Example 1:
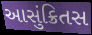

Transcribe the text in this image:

આસુંક્રિતસ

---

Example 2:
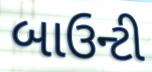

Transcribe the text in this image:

બાઉન્ટી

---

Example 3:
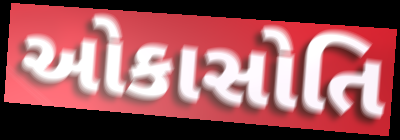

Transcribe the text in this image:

ઓકાસોતિ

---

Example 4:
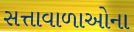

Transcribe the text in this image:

સત્તાવાળાઓના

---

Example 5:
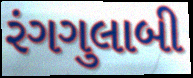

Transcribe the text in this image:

રંગગુલાબી